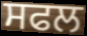
ਸਫਲ